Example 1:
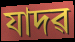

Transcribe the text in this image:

যাদৱ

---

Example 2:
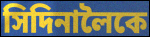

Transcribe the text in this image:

সিদিনালৈকে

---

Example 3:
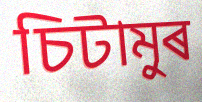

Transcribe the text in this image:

চিটামুৰ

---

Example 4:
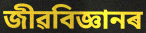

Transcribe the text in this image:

জীৱবিজ্ঞানৰ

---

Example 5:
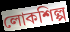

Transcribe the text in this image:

লোকশিল্প